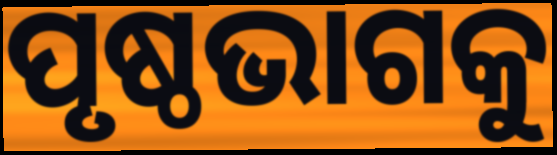
ପୃଷ୍ଠଭାଗକୁ